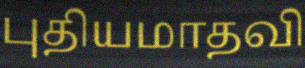
புதியமாதவி